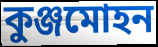
কুঞ্জমোহন